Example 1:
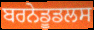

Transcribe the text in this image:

ਬਰਨੇਡੂਡਲਸ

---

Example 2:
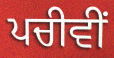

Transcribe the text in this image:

ਪਚੀਵੀਂ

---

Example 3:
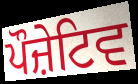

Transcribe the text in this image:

ਪੌਜ਼ੇਟਿਵ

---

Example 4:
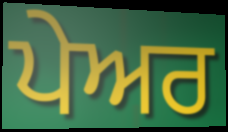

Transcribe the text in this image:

ਪੇਅਰ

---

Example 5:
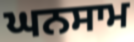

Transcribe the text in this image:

ਘਨਸਾਮ